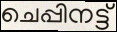
ചെപ്പിനട്ട്